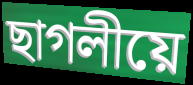
ছাগলীয়ে